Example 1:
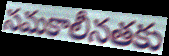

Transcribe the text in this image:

సమకాలీనతకు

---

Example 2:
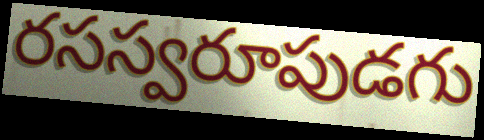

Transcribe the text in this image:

రసస్వరూపుడగు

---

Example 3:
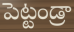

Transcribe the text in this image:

పెట్టండ్రా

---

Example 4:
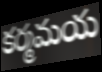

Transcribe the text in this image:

కర్మమయ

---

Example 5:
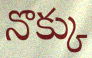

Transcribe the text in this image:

నొక్కు